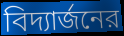
বিদ্যার্জনের